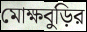
মোক্ষবুড়ির